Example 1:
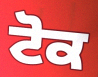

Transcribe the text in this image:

ਟੋਕ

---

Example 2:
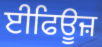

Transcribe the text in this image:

ਈਫਿਊਜ਼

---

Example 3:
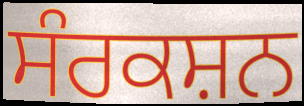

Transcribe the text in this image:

ਸੰਰਕਸ਼ਨ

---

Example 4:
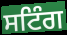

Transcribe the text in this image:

ਸਟਿੰਗ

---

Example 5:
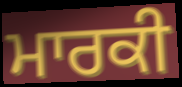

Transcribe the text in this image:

ਮਾਰਕੀ